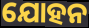
ଯୋହନ